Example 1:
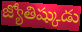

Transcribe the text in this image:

జ్యోతిష్కుడు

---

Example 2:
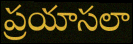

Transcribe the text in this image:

ప్రయాసలా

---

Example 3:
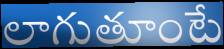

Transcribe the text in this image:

లాగుతూంటే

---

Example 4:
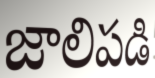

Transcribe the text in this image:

జాలిపడి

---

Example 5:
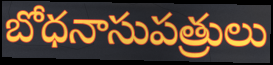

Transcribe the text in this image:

బోధనాసుపత్రులు